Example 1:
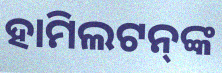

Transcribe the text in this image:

ହାମିଲଟନ୍‍ଙ୍କ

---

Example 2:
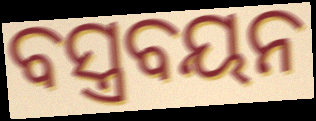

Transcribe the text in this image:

ବସ୍ତ୍ରବୟନ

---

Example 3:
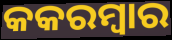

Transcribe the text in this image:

କକରମ୍ବାର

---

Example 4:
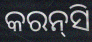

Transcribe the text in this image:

କରନ୍‌ସି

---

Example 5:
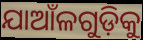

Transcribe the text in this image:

ଯାଆଁଳଗୁଡ଼ିକୁ